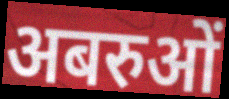
अबरुओं